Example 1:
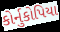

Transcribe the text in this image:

કોર્નુકોપિયા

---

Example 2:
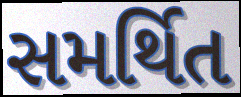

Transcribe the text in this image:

સમર્થિત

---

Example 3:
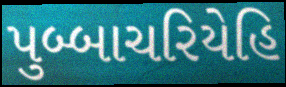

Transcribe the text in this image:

પુબ્બાચરિયેહિ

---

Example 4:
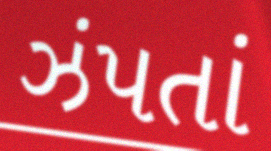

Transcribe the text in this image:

ઝંપતાં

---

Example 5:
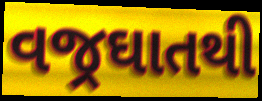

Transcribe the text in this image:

વજ્રઘાતથી